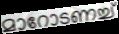
മാറോടണച്ച്